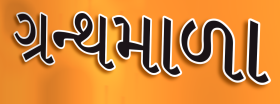
ગ્રન્થમાળા